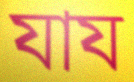
যায